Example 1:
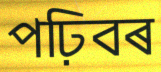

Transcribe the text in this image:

পঢ়িবৰ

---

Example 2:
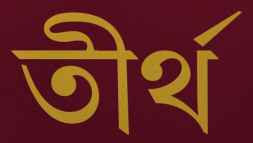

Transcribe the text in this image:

তীৰ্থ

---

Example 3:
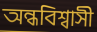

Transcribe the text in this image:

অন্ধবিশ্বাসী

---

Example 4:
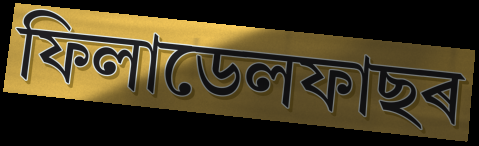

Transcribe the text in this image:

ফিলাডেলফাছৰ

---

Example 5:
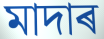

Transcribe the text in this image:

মাদাৰ